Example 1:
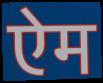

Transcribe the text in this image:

ऐम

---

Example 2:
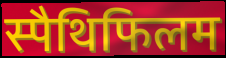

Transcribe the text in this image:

स्पैथिफिलम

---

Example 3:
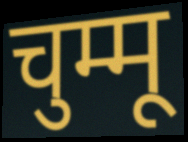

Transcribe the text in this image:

चुम्मू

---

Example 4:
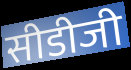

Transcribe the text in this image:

सीडीजी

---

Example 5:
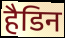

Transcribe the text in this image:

हैडिन